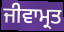
ਜੀਵਾਮ੍ਰਤ